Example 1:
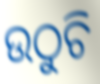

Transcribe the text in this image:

ଉଠୁଚି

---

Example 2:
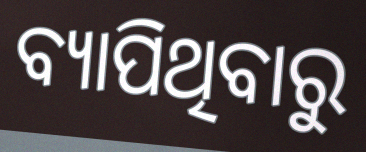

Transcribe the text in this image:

ବ୍ୟାପିଥିବାରୁ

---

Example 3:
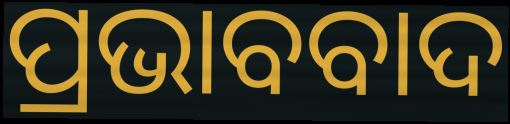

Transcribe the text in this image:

ପ୍ରଭାବବାଦ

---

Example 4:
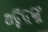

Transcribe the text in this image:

ଅର୍ଚ୍ଚିଡ଼୍‌ଙ୍କୁ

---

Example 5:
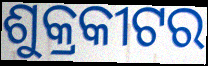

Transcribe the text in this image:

ଶୁକ୍ରକୀଟର